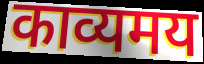
काव्यमय